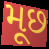
મૂછ